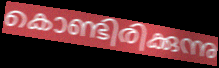
കൊണ്ടിരിക്കുന്നു